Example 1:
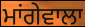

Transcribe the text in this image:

ਮਾਂਗੇਵਾਲਾ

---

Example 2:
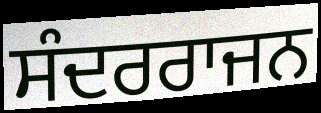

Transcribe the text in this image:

ਸੰਦਰਰਾਜਨ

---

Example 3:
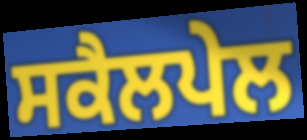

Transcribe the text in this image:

ਸਕੈਲਪੇਲ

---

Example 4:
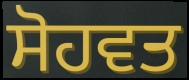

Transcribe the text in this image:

ਸੋਹਵਤ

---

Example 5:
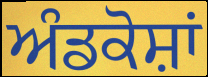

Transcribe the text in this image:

ਅੰਡਕੋਸ਼ਾਂ